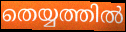
തെയ്യത്തിൽ